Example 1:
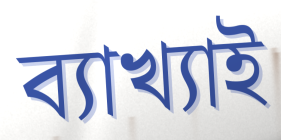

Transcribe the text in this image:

ব্যাখ্যাই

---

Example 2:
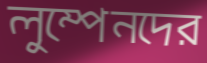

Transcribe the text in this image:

লুম্পেনদের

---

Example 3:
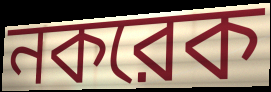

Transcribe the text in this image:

নকরেক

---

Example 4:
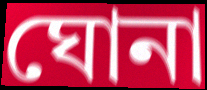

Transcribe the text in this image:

ঘোনা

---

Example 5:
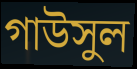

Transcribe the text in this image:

গাউসুল